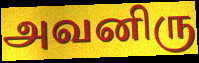
அவனிரு